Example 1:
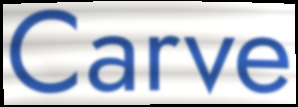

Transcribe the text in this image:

Carve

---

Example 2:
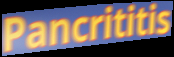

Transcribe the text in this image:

Pancrititis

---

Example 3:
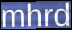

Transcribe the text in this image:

mhrd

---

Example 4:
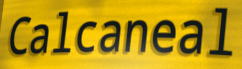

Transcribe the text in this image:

Calcaneal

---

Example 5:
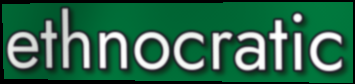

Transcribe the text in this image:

ethnocratic